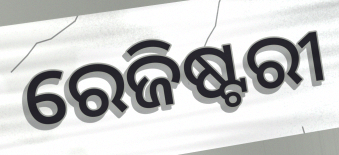
ରେଜିଷ୍ଟରୀ